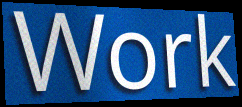
Work